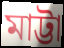
মাট্টা